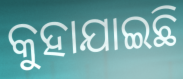
କୁହାଯାଇଛି